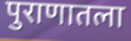
पुराणातला